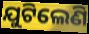
ଯୁଟିଲେଣି